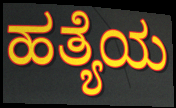
ಹತ್ಯೆಯ